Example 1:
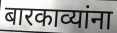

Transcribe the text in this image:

बारकाव्यांना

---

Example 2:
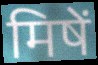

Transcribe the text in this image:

मिषें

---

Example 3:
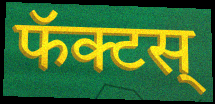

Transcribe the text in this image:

फॅक्टस्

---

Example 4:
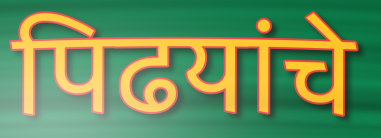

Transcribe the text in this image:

पिढयांचे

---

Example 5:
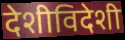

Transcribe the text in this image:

देशीविदेशी